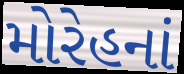
મોરેહનાં